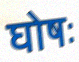
घोषः